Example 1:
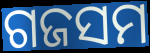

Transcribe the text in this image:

ଗଜସମ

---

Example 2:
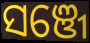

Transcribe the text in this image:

ସଞ୍ଜେ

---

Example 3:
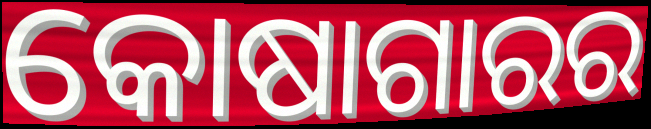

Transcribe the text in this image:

କୋଷାଗାରର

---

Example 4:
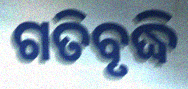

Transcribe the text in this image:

ଗତିବୃଦ୍ଧି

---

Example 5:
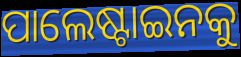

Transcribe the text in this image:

ପାଲେଷ୍ଟାଇନକୁ